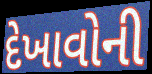
દેખાવોની